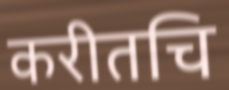
करीतचि